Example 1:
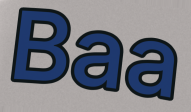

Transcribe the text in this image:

Baa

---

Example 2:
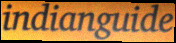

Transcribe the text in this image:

indianguide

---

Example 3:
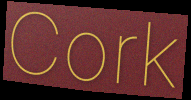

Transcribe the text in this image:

Cork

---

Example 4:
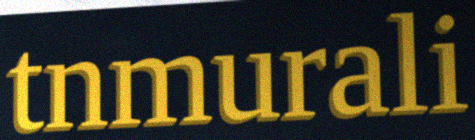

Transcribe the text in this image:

tnmurali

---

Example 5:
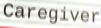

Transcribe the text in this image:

Caregiver